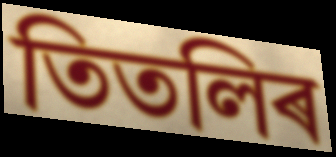
তিতলিৰ